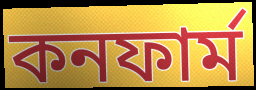
কনফার্ম